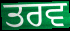
ਤਰਵ